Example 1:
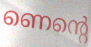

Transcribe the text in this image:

ണെന്റെ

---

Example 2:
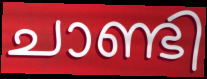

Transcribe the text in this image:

ചാണ്ടി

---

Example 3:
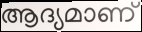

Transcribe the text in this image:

ആദ്യമാണ്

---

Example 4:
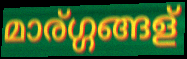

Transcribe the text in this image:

മാര്ഗ്ഗങ്ങള്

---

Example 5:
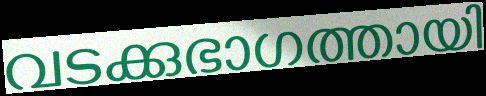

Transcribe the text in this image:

വടക്കുഭാഗത്തായി